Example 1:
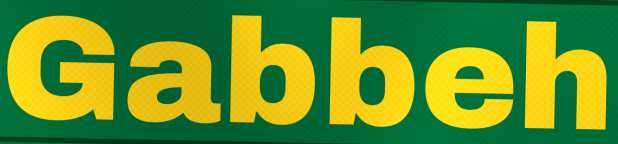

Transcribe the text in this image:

Gabbeh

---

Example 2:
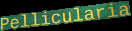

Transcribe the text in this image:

Pellicularia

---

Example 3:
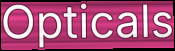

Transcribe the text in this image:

Opticals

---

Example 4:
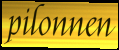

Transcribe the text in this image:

pilonnen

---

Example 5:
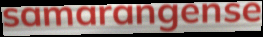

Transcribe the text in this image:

samarangense